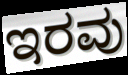
ಇರವು